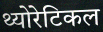
थ्योरेटिकल